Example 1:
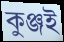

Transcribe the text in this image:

কুঞ্জই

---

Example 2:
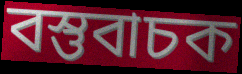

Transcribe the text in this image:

বস্তুবাচক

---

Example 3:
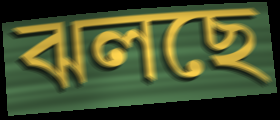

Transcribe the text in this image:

ঝলছে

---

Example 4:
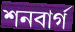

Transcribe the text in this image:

শনবার্গ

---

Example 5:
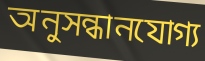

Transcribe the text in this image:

অনুসন্ধানযোগ্য